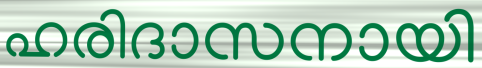
ഹരിദാസനായി